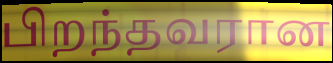
பிறந்தவரான